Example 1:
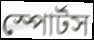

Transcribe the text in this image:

স্পোর্টস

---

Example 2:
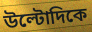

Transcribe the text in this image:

উল্টোদিকে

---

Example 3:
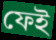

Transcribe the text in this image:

ফেই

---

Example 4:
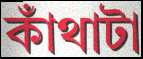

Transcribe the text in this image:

কাঁথাটা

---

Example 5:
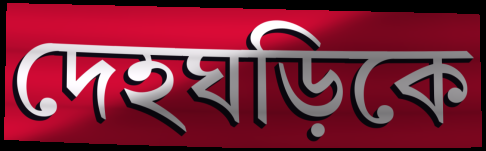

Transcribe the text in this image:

দেহঘড়িকে